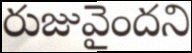
రుజువైందని